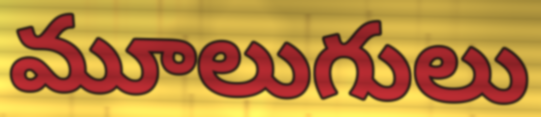
మూలుగులు